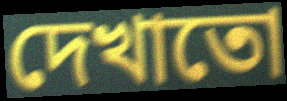
দেখাতো